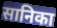
सानिका